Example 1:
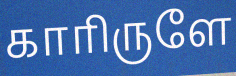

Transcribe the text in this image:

காரிருளே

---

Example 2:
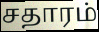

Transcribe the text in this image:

சதாரம்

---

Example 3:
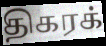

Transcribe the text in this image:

திகரக்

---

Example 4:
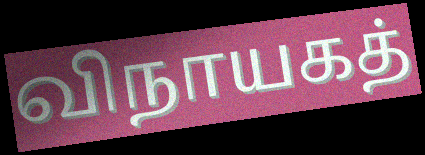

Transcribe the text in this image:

விநாயகத்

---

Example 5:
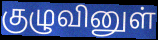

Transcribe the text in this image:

குழுவினுள்